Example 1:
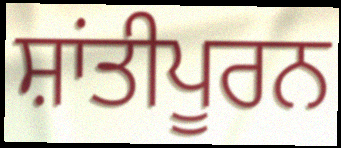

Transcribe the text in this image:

ਸ਼ਾਂਤੀਪੂਰਨ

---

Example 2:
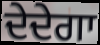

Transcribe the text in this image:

ਦੇਦੇਗਾ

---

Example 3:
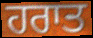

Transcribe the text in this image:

ਹਰਾਤ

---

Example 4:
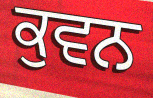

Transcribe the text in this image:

ਕੁਵਨ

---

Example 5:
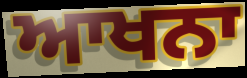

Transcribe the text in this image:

ਆਖਨਾ